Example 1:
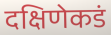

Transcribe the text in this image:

दक्षिणेकडं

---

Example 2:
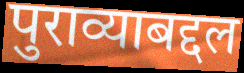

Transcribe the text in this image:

पुराव्याबद्दल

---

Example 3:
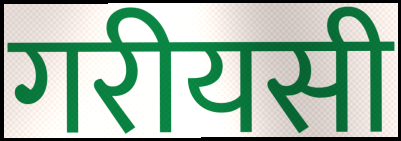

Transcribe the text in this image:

गरीयसी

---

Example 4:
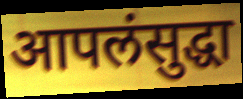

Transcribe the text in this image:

आपलंसुद्धा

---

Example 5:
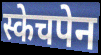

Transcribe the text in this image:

स्केचपेन